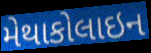
મેથાકોલાઇન